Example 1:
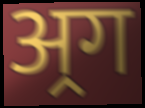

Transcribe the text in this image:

अ्रग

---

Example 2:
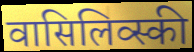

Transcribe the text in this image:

वासिलिव्स्की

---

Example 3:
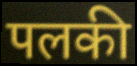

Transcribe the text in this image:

पलकी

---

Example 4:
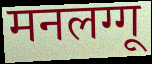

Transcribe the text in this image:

मनलग्गू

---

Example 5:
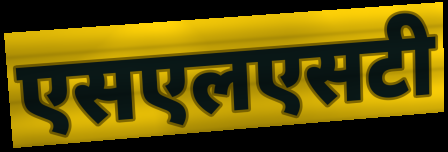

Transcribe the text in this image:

एसएलएसटी